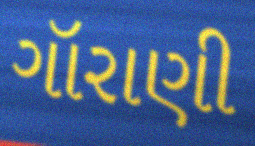
ગૉરાણી